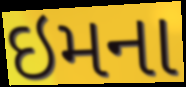
ઇમના